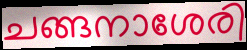
ചങ്ങനാശേരി